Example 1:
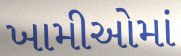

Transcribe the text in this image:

ખામીઓમાં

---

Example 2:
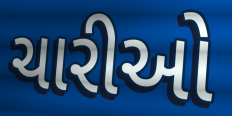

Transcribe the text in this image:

ચારીઓ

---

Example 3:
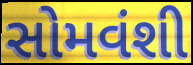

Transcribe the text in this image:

સોમવંશી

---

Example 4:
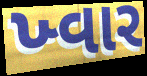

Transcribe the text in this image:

ખ્વાર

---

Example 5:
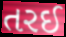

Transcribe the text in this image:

તરઈ